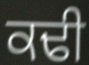
ਕਢੀ